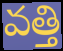
వత్తి